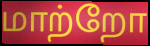
மாற்றோ